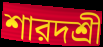
শারদশ্রী